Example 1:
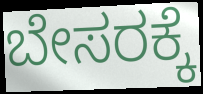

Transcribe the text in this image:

ಬೇಸರಕ್ಕೆ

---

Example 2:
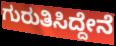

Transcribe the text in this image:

ಗುರುತಿಸಿದ್ದೇನೆ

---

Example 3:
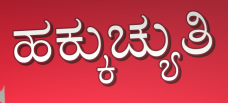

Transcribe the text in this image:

ಹಕ್ಕುಚ್ಯುತಿ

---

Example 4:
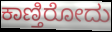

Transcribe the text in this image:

ಕಾಣ್ತಿರೋದು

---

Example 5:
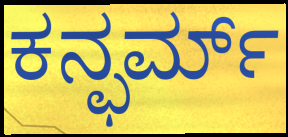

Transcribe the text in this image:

ಕನ್ಫರ್ಮ್